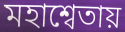
মহাশ্বেতায়